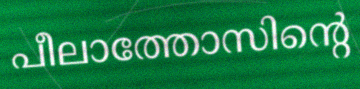
പീലാത്തോസിന്റെ